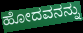
ಹೋದವನನ್ನು